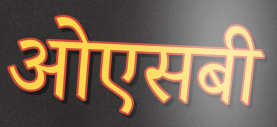
ओएसबी